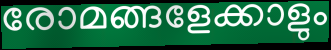
രോമങ്ങളേക്കാളും